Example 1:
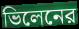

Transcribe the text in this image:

ভিলেনের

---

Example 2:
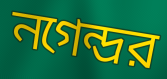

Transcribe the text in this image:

নগেন্দ্রর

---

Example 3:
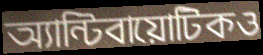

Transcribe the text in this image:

অ্যান্টিবায়োটিকও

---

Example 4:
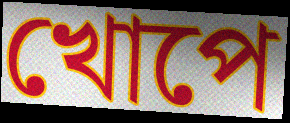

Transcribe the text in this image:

খোপে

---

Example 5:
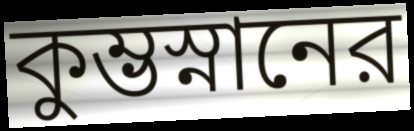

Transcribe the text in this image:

কুম্ভস্নানের